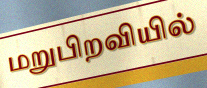
மறுபிறவியில்